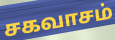
சகவாசம்